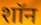
शॉन